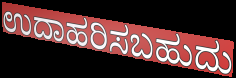
ಉದಾಹರಿಸಬಹುದು